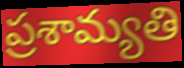
ప్రశామ్యతి